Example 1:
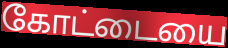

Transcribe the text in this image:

கோட்டையை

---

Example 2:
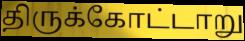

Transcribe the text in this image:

திருக்கோட்டாறு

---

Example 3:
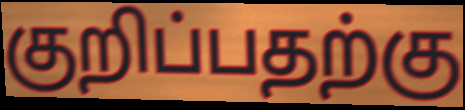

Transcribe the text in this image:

குறிப்பதற்கு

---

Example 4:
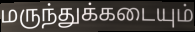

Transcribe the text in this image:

மருந்துக்கடையும்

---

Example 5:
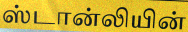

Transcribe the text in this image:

ஸ்டான்லியின்